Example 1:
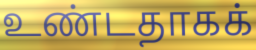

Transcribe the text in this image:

உண்டதாகக்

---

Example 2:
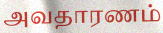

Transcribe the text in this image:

அவதாரணம்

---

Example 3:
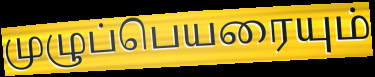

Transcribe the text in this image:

முழுப்பெயரையும்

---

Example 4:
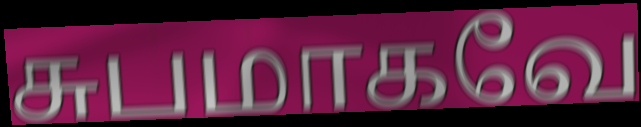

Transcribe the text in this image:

சுபமாகவே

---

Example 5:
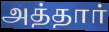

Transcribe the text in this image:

அத்தார்